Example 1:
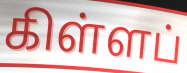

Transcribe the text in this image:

கிள்ளப்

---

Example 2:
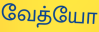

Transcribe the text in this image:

வேத்யோ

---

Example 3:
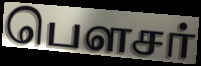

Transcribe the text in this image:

பௌசர்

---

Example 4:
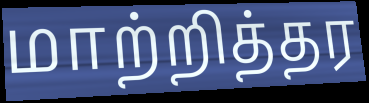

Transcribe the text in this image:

மாற்றித்தர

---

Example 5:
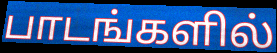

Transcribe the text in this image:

பாடங்களில்